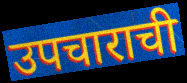
उपचाराची